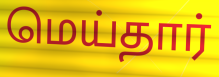
மெய்தார்